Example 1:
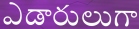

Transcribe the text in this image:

ఎడారులుగా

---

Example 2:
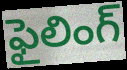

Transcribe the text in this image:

ఫైలింగ్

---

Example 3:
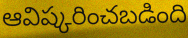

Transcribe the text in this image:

ఆవిష్కరించబడింది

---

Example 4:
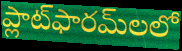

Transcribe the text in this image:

ప్లాట్‌ఫారమ్‌లలో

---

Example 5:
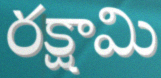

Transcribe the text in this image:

రక్షామి